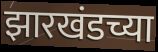
झारखंडच्या